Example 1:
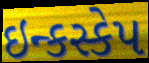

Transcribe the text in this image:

ઇન્કસ્કેપ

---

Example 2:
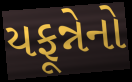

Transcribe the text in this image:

યફૂન્નેનો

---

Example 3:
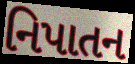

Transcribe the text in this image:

નિપાતન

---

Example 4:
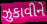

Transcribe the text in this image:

ઝુકાવીને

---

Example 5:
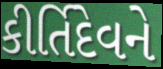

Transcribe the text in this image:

કીર્તિદેવને